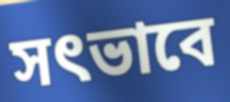
সৎভাবে